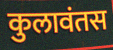
कुलावंतस